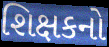
શિક્ષકનો